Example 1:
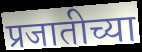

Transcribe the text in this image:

प्रजातीच्या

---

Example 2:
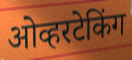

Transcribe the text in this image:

ओव्हरटेकिंग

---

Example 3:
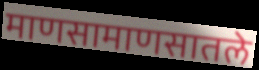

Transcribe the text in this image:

माणसामाणसातले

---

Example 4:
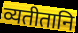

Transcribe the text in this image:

व्यतीतानि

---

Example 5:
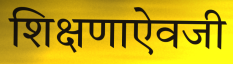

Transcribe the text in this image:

शिक्षणाऐवजी